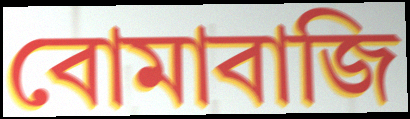
বোমাবাজি